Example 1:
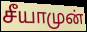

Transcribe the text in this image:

சீயாமுன்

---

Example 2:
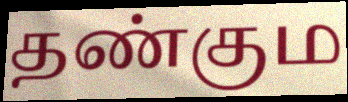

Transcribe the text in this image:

தண்கும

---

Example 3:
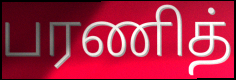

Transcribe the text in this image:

பரணித்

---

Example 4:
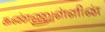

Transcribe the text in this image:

கண்ணுள்ளின்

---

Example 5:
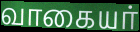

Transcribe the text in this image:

வாகையர்